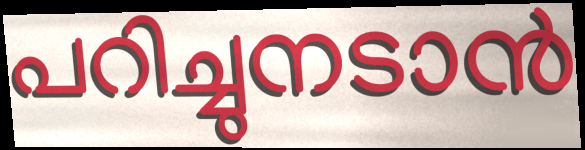
പറിച്ചുനടാൻ